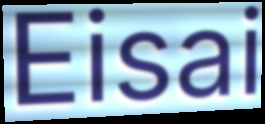
Eisai